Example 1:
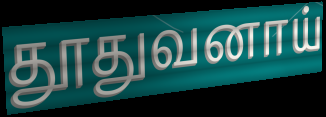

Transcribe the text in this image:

தூதுவனாய்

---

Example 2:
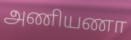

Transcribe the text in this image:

அணியணா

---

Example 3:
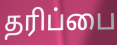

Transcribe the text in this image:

தரிப்பை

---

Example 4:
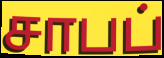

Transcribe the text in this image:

சாபப்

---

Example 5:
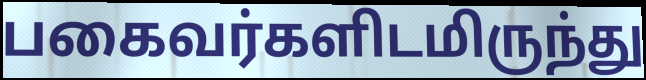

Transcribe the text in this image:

பகைவர்களிடமிருந்து